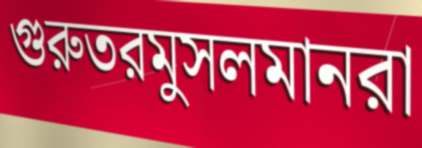
গুরুতরমুসলমানরা